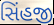
સિંહજી